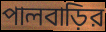
পালবাড়ির